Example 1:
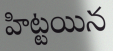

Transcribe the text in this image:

హిట్టయిన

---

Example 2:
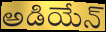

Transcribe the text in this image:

అడియేన్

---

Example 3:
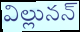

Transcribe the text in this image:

విల్లునన్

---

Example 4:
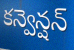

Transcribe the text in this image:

కన్వెన్షన్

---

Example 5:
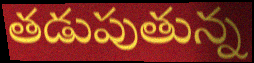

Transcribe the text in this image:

తడుపుతున్న